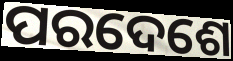
ପରଦେଶେ